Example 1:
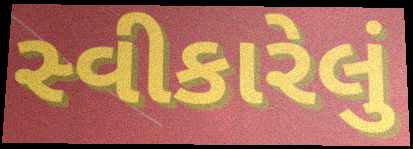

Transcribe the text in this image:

સ્વીકારેલું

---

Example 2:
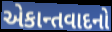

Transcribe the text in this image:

એકાન્તવાદનો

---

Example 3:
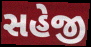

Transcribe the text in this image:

સહેજી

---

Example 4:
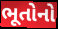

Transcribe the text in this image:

ભૂતોનો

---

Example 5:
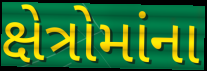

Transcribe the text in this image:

ક્ષેત્રોમાંના